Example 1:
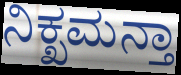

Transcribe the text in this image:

ನಿಕ್ಖಮನ್ತಾ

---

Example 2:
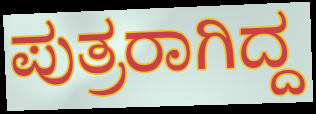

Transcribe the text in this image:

ಪುತ್ರರಾಗಿದ್ದ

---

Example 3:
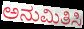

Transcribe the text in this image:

ಅನುಮಿತಿಸಿ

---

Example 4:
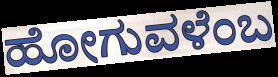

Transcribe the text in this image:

ಹೋಗುವಳೆಂಬ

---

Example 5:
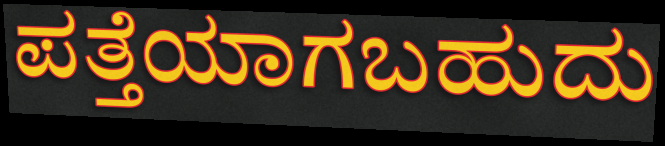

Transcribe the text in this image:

ಪತ್ತೆಯಾಗಬಹುದು